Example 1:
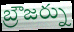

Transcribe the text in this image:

బ్రౌజర్ను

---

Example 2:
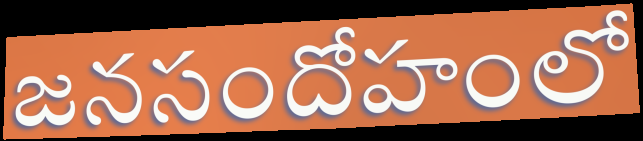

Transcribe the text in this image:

జనసందోహంలో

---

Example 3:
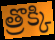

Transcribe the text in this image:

త్రొక్కి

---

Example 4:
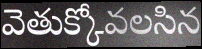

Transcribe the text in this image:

వెతుక్కోవలసిన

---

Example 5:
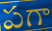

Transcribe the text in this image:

పగా